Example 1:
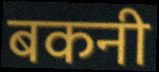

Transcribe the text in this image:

बकनी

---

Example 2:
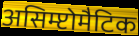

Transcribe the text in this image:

असिम्प्टोमैटिक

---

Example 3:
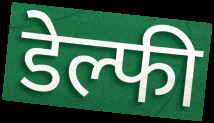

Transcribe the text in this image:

डेल्फी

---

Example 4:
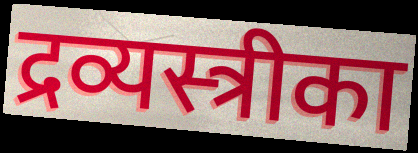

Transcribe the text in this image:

द्रव्यस्त्रीका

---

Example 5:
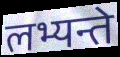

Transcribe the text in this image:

लभ्यन्ते